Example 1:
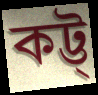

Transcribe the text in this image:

কট্ট্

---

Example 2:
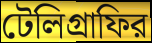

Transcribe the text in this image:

টেলিগ্রাফির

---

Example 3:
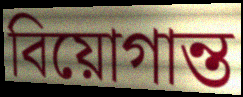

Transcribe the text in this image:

বিয়োগান্ত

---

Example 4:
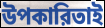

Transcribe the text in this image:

উপকারিতাই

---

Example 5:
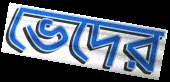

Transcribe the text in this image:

ভেদের